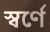
স্বর্ণে